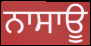
ਨਾਸਾਊ